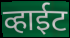
व्हाईट